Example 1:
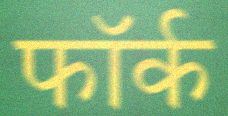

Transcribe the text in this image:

फॉर्क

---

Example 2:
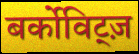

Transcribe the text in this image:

बर्कोविट्ज़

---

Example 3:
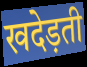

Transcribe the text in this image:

खदेड़ती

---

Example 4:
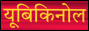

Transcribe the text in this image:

यूबिकिनोल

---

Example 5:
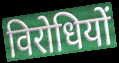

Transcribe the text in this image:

विरोधियों